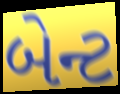
બેન્ટ